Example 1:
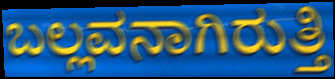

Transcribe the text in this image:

ಬಲ್ಲವನಾಗಿರುತ್ತಿ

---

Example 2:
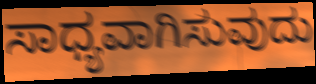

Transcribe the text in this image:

ಸಾಧ್ಯವಾಗಿಸುವುದು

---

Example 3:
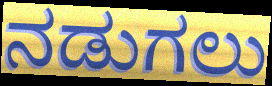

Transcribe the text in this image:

ನಡುಗಲು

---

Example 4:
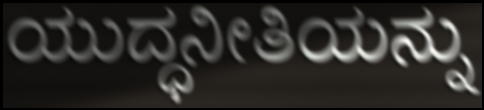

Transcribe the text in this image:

ಯುದ್ಧನೀತಿಯನ್ನು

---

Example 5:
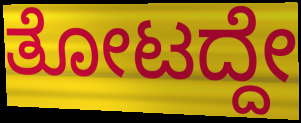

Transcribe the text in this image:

ತೋಟದ್ದೇ